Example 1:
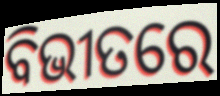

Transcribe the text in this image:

ବିଭୀତରେ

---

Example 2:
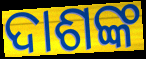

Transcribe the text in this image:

ଦାଶଙ୍କ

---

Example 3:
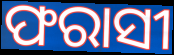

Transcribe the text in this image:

ଫରାସୀ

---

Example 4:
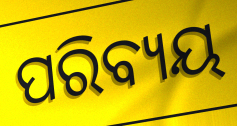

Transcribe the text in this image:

ପରିବ୍ୟୟ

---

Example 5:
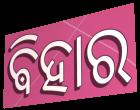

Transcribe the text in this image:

ଵିହାର